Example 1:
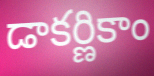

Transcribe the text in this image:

డాకర్ణికాం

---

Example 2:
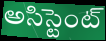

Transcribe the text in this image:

అసిస్టెంట్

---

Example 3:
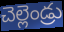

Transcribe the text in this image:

చెల్లెండ్రు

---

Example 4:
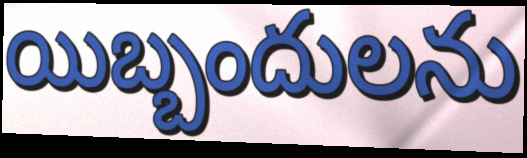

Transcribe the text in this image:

యిబ్బందులను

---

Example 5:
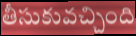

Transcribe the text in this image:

తీసుకువచ్చింది